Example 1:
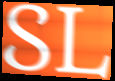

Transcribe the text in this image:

SL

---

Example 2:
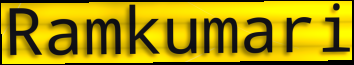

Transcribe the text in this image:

Ramkumari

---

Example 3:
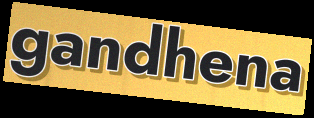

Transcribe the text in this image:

gandhena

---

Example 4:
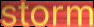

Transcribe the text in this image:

storm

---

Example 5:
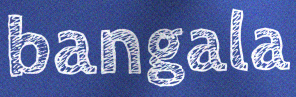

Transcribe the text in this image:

bangala